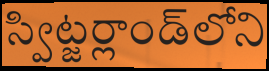
స్విట్జర్లాండ్‌లోని